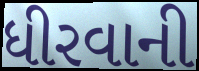
ધીરવાની